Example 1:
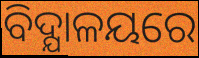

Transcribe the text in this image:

ବିଦ୍ଯାଳୟରେ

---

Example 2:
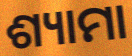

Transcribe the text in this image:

ଶ୍ୟାମା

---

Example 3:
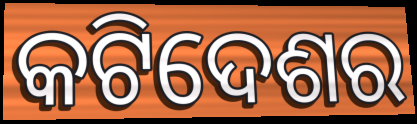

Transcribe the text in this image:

କଟିଦେଶର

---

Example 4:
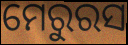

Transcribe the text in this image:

ମେରୁରସ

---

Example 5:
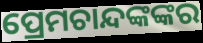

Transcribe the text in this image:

ପ୍ରେମଚାନ୍ଦଙ୍କଙ୍କର